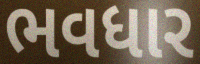
ભવધાર